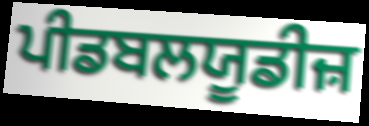
ਪੀਡਬਲਯੂਡੀਜ਼